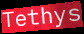
Tethys